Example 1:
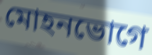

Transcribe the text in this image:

মোহনভোগে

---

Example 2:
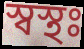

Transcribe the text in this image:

স্বস্থঃ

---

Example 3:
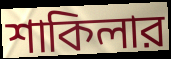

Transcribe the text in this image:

শাকিলার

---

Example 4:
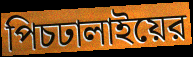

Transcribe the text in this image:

পিচঢালাইয়ের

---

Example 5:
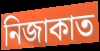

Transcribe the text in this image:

নিজাকাত